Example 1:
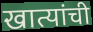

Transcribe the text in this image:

खात्यांची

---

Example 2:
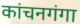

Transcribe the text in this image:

कांचनगंगा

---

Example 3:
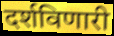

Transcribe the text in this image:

दर्शविणारी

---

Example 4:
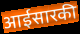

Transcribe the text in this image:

आईसारकी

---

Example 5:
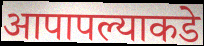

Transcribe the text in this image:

आपापल्याकडे